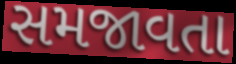
સમજાવતા